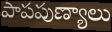
పాపపుణ్యాలు